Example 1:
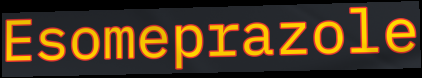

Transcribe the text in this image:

Esomeprazole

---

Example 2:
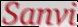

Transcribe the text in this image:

Sanvi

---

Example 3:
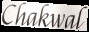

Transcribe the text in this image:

Chakwal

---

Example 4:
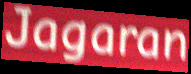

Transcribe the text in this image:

Jagaran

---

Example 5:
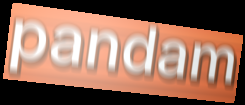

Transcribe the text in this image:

pandam